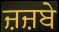
ਜ਼ਜ਼ਬੇ